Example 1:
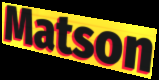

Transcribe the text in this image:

Matson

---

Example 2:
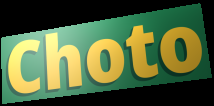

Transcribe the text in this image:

Choto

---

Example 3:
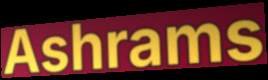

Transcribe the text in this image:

Ashrams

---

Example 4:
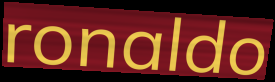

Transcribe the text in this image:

ronaldo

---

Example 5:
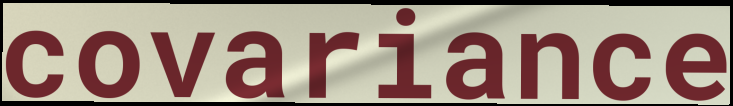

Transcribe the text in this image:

covariance